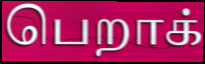
பெறாக்